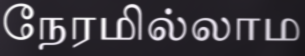
நேரமில்லாம